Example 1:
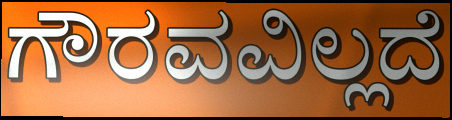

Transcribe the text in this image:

ಗೌರವವಿಲ್ಲದೆ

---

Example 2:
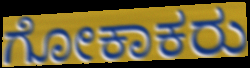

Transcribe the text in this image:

ಗೋಕಾಕರು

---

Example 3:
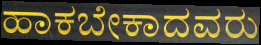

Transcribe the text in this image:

ಹಾಕಬೇಕಾದವರು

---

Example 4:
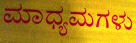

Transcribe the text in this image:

ಮಾಧ್ಯಮಗಳು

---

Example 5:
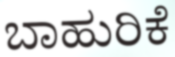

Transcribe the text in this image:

ಬಾಹುರಿಕೆ